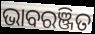
ଭାବରଞ୍ଜିତ